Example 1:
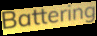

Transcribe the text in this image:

Battering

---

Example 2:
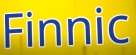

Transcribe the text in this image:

Finnic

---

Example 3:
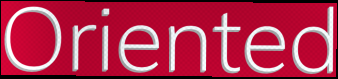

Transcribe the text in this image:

Oriented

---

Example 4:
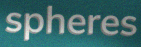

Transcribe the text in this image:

spheres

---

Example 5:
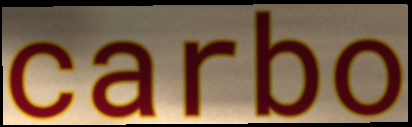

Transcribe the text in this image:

carbo